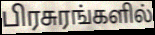
பிரசுரங்களில்